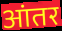
आंतर